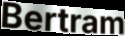
Bertram